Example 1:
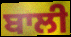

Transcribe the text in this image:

ਬਾਲੀ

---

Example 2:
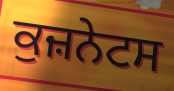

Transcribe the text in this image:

ਕੁਜ਼ਨੇਟਸ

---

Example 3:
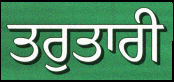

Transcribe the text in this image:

ਤਰੁਤਾਰੀ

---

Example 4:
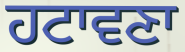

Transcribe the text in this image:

ਹਟਾਵਣਾ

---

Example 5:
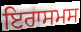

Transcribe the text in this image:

ਇਰਾਸਮਸ